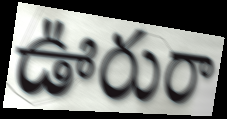
ఊరురా